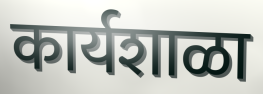
कार्यशाळा